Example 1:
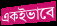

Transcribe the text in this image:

একইভাবে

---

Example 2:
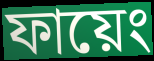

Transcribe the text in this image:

ফায়েং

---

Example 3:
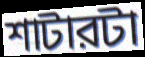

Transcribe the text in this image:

শাটারটা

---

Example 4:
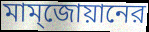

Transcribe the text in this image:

মাম্জোয়ানের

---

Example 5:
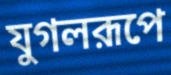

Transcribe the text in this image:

যুগলরূপে